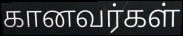
கானவர்கள்